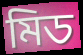
মিড